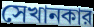
সেখানকার